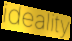
ideality